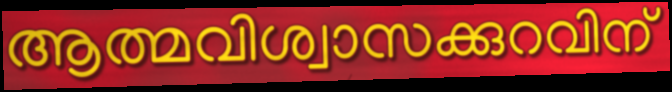
ആത്മവിശ്വാസക്കുറവിന്